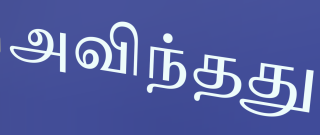
அவிந்தது